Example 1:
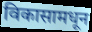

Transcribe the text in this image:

विकासामधून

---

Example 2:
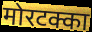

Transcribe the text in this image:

मोरटक्का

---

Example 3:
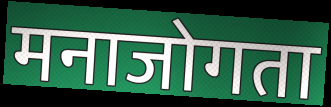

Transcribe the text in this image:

मनाजोगता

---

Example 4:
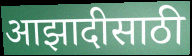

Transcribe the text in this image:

आझादीसाठी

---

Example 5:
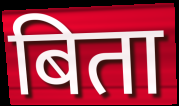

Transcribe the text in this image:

बिता